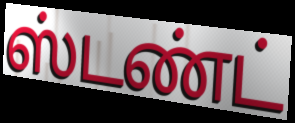
ஸ்டண்ட்